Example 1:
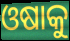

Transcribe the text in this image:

ଓଷାକୁ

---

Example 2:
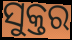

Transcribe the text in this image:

ସୁକ୍ତର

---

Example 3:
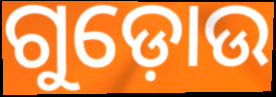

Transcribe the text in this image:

ଗୁଡ଼ୋଉ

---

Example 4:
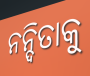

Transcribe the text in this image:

ନନ୍ଦିତାକୁ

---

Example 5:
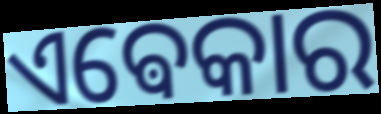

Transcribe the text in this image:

ଏଵେକାର